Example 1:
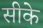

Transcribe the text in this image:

सीके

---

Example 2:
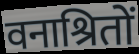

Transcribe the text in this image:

वनाश्रितों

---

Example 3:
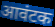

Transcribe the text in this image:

आवंटक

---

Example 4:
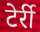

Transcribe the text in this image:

टेर्री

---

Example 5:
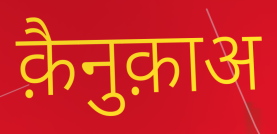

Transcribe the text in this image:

क़ैनुक़ाअ